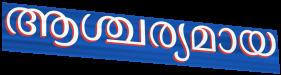
ആശ്ചര്യമായ